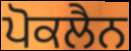
ਪੋਕਲੈਨ